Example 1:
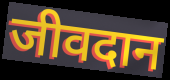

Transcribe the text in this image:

जीवदान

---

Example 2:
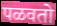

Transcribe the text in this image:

पळवतो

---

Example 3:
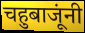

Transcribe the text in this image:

चहुबाजूंनी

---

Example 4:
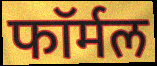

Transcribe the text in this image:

फॉर्मल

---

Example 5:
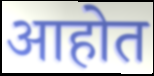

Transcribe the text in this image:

आहोत